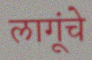
लागूंचे